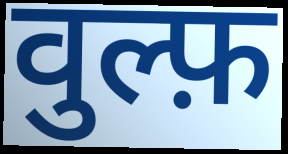
वुल्फ़